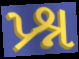
પ્ર્શ્ન